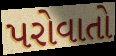
પરોવાતો